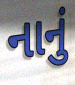
નાનું